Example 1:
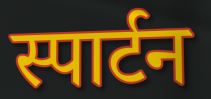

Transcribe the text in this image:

स्पार्टन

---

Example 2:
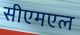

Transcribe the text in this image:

सीएमएल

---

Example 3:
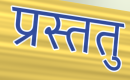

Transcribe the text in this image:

प्रस्ततु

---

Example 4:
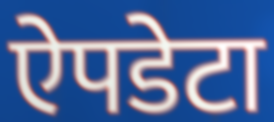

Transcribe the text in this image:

ऐपडेटा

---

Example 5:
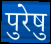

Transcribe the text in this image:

पुरेषु